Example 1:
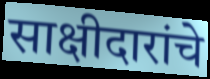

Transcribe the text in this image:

साक्षीदारांचे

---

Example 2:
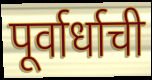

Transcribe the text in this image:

पूर्वार्धाची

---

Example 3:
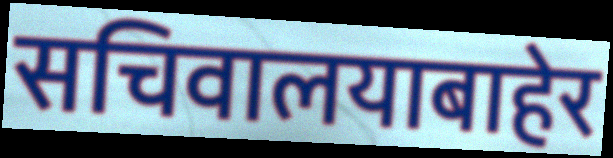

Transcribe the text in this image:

सचिवालयाबाहेर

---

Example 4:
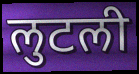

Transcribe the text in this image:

लुटली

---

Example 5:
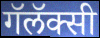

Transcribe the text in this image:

गॅलॅक्सी